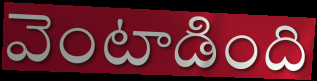
వెంటాడింది